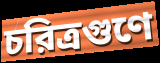
চরিত্রগুণে